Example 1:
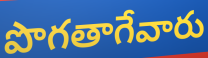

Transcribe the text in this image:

పొగతాగేవారు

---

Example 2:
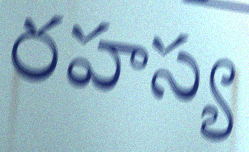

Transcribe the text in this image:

రహస్య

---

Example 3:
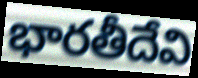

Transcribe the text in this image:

భారతీదేవి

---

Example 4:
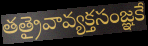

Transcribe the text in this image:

తత్రైవావ్యక్తసంజ్ఞకే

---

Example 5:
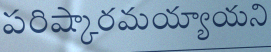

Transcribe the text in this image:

పరిష్కారమయ్యాయని